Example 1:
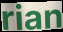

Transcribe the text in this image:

rian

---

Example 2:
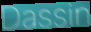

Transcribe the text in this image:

Dassin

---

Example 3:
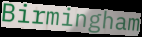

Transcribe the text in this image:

Birmingham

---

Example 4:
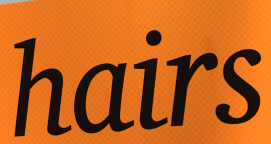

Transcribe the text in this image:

hairs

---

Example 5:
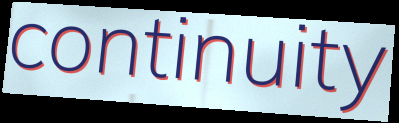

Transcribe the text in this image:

continuity